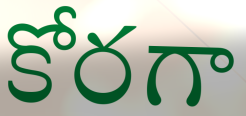
కోరగా